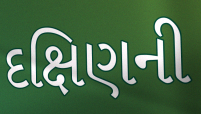
દક્ષિણની